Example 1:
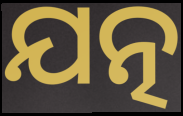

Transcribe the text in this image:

ଯତ୍ନ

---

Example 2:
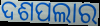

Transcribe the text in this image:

ଦଶପଲାର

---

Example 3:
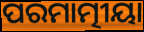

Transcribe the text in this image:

ପରମାତ୍ମୀୟା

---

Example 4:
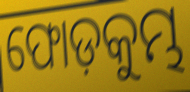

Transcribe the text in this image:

ଫୋଡ଼କୁମ୍ଭ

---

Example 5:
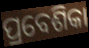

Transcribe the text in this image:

ପ୍ରବେଶିକା